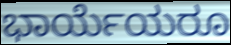
ಭಾರ್ಯೆಯರೂ